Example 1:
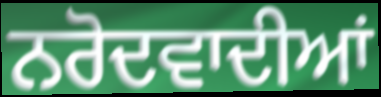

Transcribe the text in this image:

ਨਰੋਦਵਾਦੀਆਂ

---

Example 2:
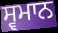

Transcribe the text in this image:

ਸ੍ਵਮਾਨ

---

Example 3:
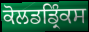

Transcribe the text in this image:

ਕੋਲਡਡ੍ਰਿੰਕਸ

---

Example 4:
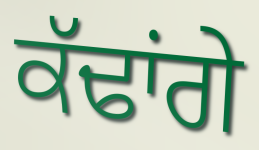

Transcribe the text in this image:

ਕੱਢਾਂਗੇ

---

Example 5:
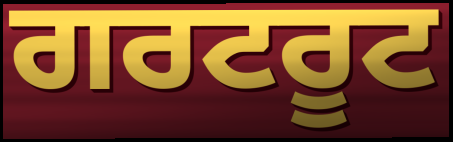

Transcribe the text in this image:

ਗਰਟਰੂਟ